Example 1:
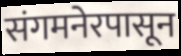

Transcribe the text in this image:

संगमनेरपासून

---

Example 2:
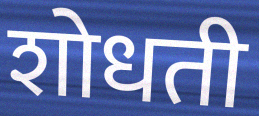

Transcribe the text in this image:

शोधती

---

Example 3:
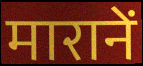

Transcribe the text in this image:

मारानें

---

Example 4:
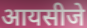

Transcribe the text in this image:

आयसीजे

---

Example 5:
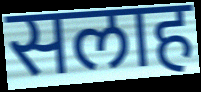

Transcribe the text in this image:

सलाह